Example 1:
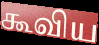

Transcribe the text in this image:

கூவிய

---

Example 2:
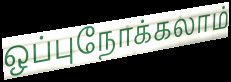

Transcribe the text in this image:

ஒப்புநோக்கலாம்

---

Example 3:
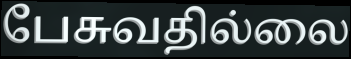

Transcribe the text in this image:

பேசுவதில்லை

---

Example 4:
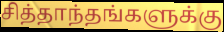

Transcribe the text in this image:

சித்தாந்தங்களுக்கு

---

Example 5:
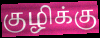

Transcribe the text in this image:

குழிக்கு